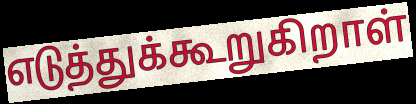
எடுத்துக்கூறுகிறாள்